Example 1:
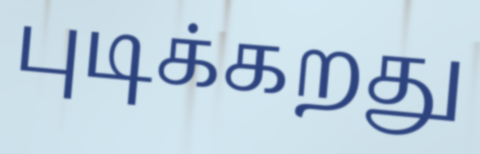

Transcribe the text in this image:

புடிக்கறது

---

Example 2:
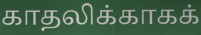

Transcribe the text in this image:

காதலிக்காகக்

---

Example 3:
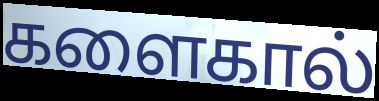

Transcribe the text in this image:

களைகால்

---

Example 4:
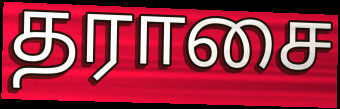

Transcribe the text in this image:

தராசை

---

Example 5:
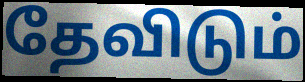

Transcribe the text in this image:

தேவிடும்